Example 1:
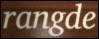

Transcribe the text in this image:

rangde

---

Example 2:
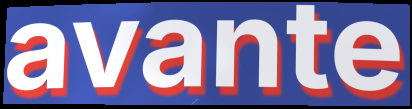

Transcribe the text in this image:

avante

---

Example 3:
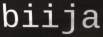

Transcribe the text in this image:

biija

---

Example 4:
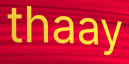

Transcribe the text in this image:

thaay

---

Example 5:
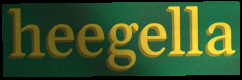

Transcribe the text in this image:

heegella